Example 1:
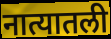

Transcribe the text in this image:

नात्यातली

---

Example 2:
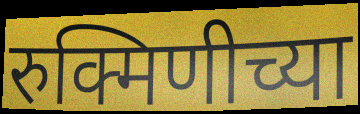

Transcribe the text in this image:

रुक्मिणीच्या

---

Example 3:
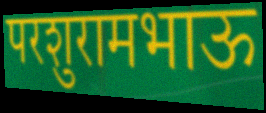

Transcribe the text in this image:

परशुरामभाऊ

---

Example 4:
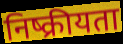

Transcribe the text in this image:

निष्क्रीयता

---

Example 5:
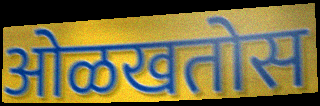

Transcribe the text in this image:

ओळखतोस